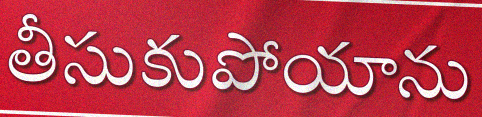
తీసుకుపోయాను